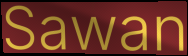
Sawan